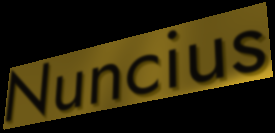
Nuncius